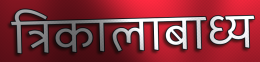
त्रिकालाबाध्य